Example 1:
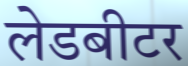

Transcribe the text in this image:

लेडबीटर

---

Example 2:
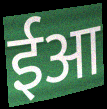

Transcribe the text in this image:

ईआ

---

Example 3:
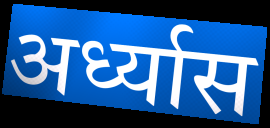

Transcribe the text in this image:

अर्ध्यास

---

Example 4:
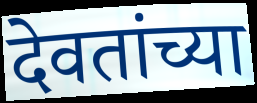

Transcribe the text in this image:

देवतांच्या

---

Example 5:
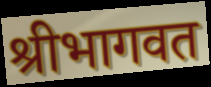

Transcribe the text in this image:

श्रीभागवत